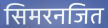
सिमरनजित